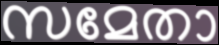
സമേതാ